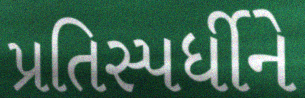
પ્રતિસ્પર્ધીને